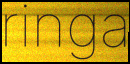
ringa